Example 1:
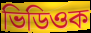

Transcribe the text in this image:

ভিডিওক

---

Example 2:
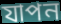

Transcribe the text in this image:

যাপন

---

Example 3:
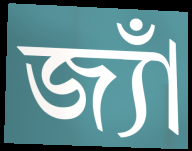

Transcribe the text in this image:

জ্যাঁ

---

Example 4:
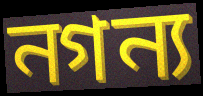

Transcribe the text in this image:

নগন্য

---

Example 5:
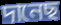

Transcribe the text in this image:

দানেছ